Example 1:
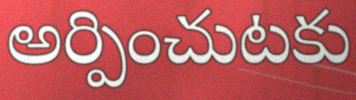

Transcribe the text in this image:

అర్పించుటకు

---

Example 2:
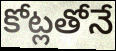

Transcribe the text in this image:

కోట్లతోనే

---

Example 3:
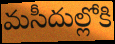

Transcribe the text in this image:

మసీదుల్లోకి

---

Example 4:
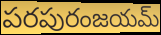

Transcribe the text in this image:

పరపురంజయమ్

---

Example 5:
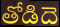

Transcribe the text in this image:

తోడిదె